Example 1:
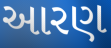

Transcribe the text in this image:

આરણ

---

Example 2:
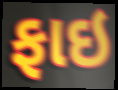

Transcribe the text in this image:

ફાઇ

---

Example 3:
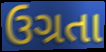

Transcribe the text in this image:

ઉગ્રતા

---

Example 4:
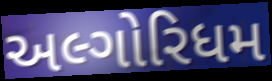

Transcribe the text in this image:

અલ્ગોરિધમ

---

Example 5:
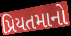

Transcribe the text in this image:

પ્રિયતમાનો